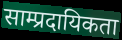
साम्प्रदायिकता